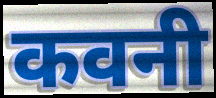
कवनी